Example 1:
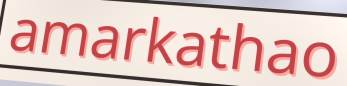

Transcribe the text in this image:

amarkathao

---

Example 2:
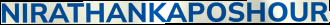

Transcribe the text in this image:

NIRATHANKAPOSHOUR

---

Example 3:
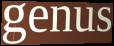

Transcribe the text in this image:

genus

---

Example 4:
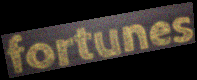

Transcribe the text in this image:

fortunes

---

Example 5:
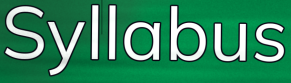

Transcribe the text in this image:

Syllabus